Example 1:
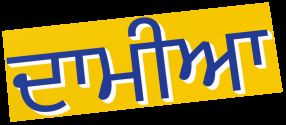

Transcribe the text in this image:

ਦਾਮੀਆ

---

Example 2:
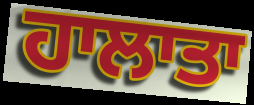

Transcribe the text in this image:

ਹਾਲਾਤਾ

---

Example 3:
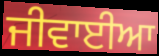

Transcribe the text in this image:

ਜੀਵਾਈਆ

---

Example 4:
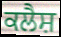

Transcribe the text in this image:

ਕਲੈਸ਼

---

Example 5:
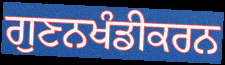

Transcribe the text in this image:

ਗੁਣਨਖੰਡੀਕਰਨ